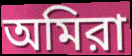
অমিরা